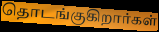
தொடங்குகிறார்கள்